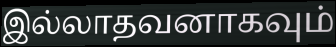
இல்லாதவனாகவும்